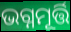
ଭଗ୍ନମୂର୍ତ୍ତି